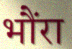
भौंरा